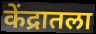
केंद्रातला